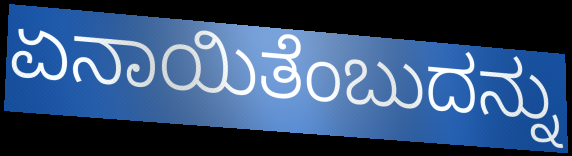
ಏನಾಯಿತೆಂಬುದನ್ನು